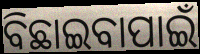
ବିଛାଇବାପାଇଁ